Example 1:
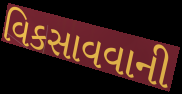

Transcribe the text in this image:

વિકસાવવાની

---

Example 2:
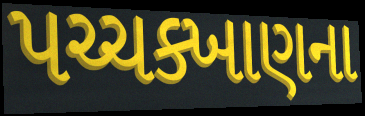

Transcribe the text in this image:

પચ્ચક્ખાણના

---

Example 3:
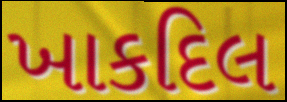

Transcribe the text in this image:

ખાકદિલ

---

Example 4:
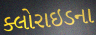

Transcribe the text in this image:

ક્લોરાઇડના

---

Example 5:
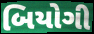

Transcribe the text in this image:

બિયોગી